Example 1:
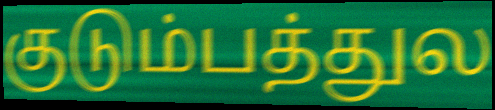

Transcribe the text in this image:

குடும்பத்துல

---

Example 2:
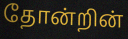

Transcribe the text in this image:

தோன்றின்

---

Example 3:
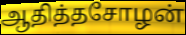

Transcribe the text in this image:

ஆதித்தசோழன்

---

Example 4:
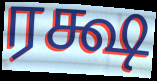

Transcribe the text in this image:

ரக்ஷ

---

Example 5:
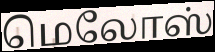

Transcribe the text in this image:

மெலோஸ்